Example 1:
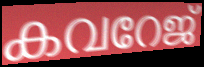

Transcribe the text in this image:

കവറേജ്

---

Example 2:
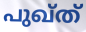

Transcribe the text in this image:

പുഖ്ത്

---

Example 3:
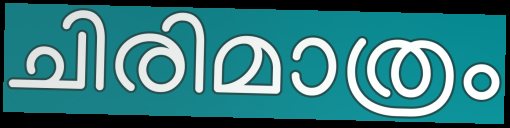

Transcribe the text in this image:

ചിരിമാത്രം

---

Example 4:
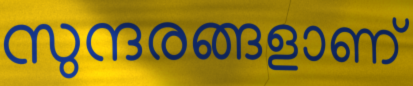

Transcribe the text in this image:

സുന്ദരങ്ങളാണ്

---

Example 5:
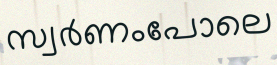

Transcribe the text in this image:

സ്വർണംപോലെ